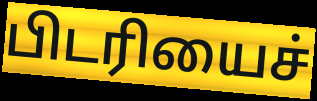
பிடரியைச்